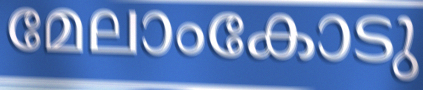
മേലാംകോടു